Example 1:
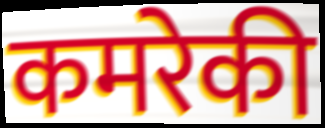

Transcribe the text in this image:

कमरेकी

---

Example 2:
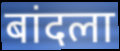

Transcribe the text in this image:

बांदला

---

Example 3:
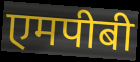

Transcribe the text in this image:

एमपीबी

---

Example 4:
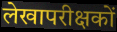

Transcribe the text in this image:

लेखापरीक्षकों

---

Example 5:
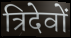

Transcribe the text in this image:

त्रिदेवों